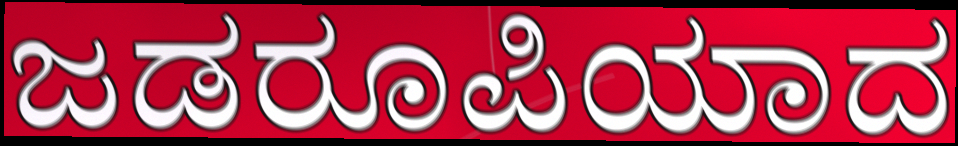
ಜಡರೂಪಿಯಾದ